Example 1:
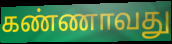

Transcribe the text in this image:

கண்ணாவது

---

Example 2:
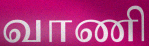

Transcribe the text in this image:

வாணி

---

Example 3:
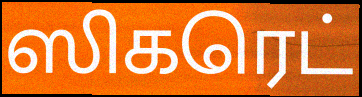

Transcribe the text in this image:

ஸிகரெட்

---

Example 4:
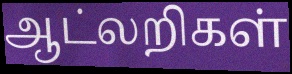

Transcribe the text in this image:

ஆட்லறிகள்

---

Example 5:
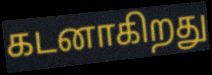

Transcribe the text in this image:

கடனாகிறது